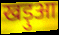
खड़ुआ